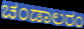
ಚಂಡಾಲರಂ